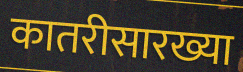
कातरीसारख्या